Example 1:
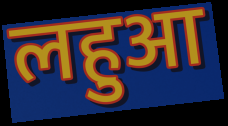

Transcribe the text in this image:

लहुआ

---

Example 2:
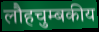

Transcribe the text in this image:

लौहचुम्बकीय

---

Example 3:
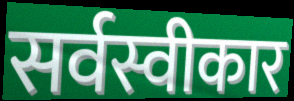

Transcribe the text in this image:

सर्वस्वीकार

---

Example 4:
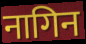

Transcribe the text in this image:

नागिन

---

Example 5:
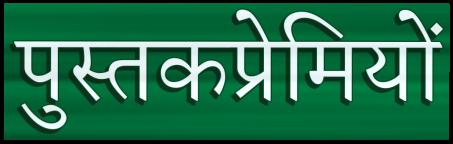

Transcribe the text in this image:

पुस्तकप्रेमियों